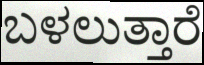
ಬಳಲುತ್ತಾರೆ